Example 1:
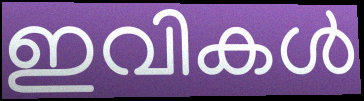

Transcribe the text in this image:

ഇവികൾ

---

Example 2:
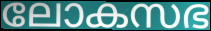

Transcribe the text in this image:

ലോകസഭ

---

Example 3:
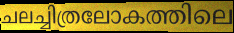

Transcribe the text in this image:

ചലച്ചിത്രലോകത്തിലെ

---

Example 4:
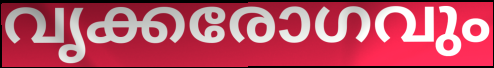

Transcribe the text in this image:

വൃക്കരോഗവും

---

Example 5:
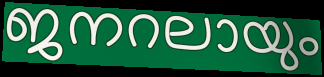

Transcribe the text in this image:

ജനറലായും